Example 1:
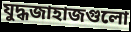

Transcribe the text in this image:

যুদ্ধজাহাজগুলো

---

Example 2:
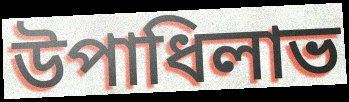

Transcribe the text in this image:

উপাধিলাভ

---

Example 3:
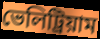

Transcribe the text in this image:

ভেলিট্রিয়াম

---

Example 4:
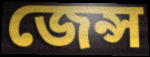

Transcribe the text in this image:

জেন্স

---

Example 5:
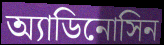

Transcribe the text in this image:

অ্যাডিনোসিন